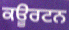
ਕਊਰਟਨ